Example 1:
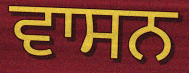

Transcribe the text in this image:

ਵਾਸਨ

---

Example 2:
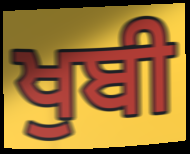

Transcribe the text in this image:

ਖੁਬੀ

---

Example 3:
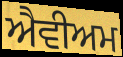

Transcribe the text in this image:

ਐਵੀਅਮ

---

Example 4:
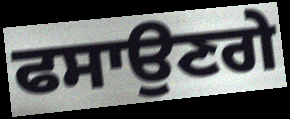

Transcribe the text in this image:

ਫਸਾਉਣਗੇ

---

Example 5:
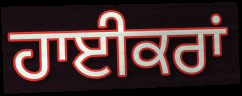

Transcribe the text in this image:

ਹਾਈਕਰਾਂ